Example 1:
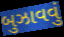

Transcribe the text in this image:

બુઝાવવું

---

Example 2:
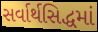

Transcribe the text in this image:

સર્વાર્થસિદ્ધમાં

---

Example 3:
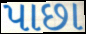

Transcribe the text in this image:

પાછા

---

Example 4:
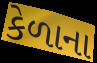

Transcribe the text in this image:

કેળાના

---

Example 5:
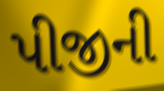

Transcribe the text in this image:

પીજીની